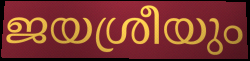
ജയശ്രീയും